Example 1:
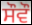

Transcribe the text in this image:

ਸੌਵੌ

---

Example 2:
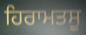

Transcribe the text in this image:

ਹਿਰਾਮਤਸੂ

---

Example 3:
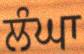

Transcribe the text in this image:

ਲੰਘਾ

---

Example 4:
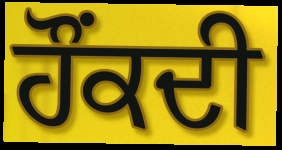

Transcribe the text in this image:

ਹੌਂਕਦੀ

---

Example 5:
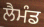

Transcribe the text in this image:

ਲੈਮੰਡ